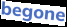
begone